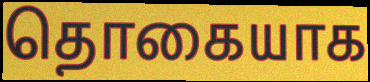
தொகையாக